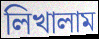
লিখালাম